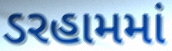
ડરહામમાં